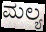
ಮಲ್ಯ